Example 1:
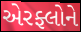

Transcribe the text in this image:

એરફ્લોને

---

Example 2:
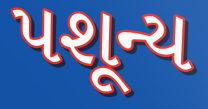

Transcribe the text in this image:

પશૂન્ય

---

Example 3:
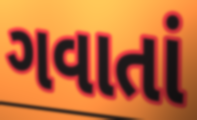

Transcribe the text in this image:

ગવાતાં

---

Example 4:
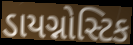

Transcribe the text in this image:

ડાયગ્નોસ્ટિક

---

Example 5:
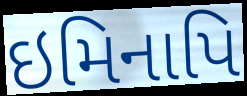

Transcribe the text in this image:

ઇમિનાપિ